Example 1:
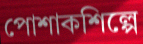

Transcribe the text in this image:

পোশাকশিল্পে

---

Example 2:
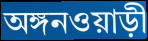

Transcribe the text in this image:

অঙ্গনওয়াড়ী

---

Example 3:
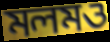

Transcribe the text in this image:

মলমও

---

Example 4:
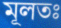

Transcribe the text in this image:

মূলতঃ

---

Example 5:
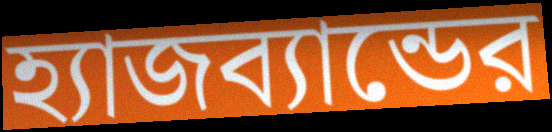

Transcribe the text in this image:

হ্যাজব্যান্ডের